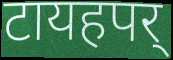
टायहपर्